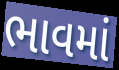
ભાવમાં